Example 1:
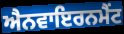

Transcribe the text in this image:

ਐਨਵਾਇਰਨਮੈਂਟ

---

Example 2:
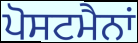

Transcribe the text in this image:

ਪੋਸਟਮੈਨਾਂ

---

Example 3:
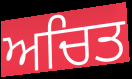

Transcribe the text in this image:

ਅਚਿਤ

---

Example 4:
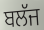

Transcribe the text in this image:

ਬਲੱਜ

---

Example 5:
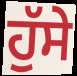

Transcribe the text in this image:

ਹੁੱਸੇ